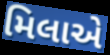
મિલાએ